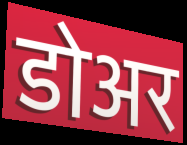
डोअर